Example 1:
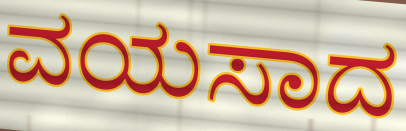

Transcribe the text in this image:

ವಯಸಾದ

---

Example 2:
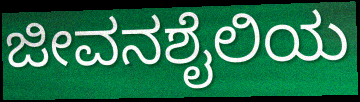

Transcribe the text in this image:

ಜೀವನಶೈಲಿಯ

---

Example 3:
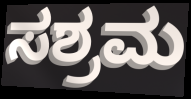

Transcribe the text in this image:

ಸಶ್ರಮ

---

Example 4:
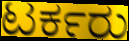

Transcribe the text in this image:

ಟರ್ಕರು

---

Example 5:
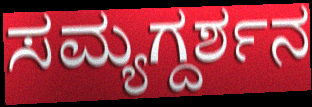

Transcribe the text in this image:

ಸಮ್ಯಗ್ದರ್ಶನ